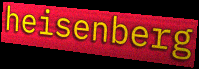
heisenberg